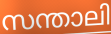
സന്താലി